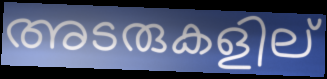
അടരുകളില്